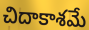
చిదాకాశమే